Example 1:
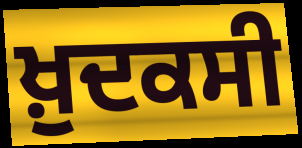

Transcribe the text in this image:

ਖ਼ੁਦਕਸੀ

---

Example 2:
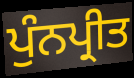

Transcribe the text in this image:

ਪੁੰਨਪ੍ਰੀਤ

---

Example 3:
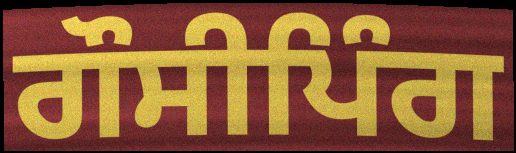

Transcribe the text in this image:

ਗੌਸੀਪਿੰਗ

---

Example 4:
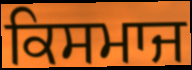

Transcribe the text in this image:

ਕਿਸਮਾਜ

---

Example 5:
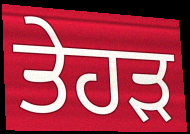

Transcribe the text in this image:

ਤੇਹੜ